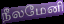
நீலமேனி